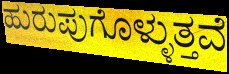
ಹುರುಪುಗೊಳ್ಳುತ್ತವೆ